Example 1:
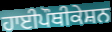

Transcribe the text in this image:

ਹਾਈਪੌਥੀਕੇਸ਼ਨ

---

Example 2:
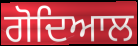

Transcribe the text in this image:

ਗੋਦਿਆਲ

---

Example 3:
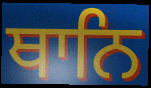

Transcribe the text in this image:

ਥਾਨਿ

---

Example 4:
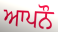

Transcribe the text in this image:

ਆਪਨੌ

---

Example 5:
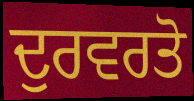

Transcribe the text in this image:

ਦੁਰਵਰਤੋ